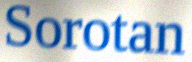
Sorotan